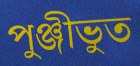
পুঞ্জীভুত